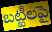
బట్టీలపై